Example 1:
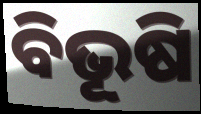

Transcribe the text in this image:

ବିଭୂଷି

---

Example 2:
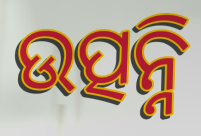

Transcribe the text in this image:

ଉତ୍ପନ୍ନି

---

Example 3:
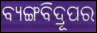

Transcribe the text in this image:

ବ୍ୟଙ୍ଗବିଦ୍ରୂପର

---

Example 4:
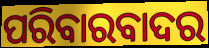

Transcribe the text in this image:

ପରିବାରବାଦର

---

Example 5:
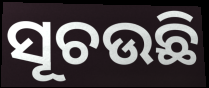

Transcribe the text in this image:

ସୂଚଉଛି